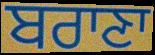
ਬਰਾਣਾ